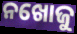
ନଖୋଜୁ